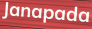
Janapada